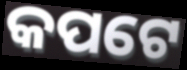
କପଟେ